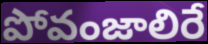
పోవంజాలిరే